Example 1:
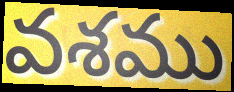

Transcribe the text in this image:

వశము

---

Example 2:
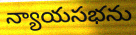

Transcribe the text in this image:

న్యాయసభను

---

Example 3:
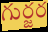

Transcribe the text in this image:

గుర్జర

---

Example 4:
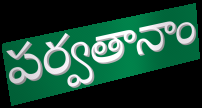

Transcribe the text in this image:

పర్వతానాం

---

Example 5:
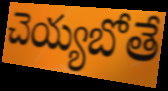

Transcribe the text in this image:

చెయ్యబోతే